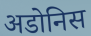
अडोनिस